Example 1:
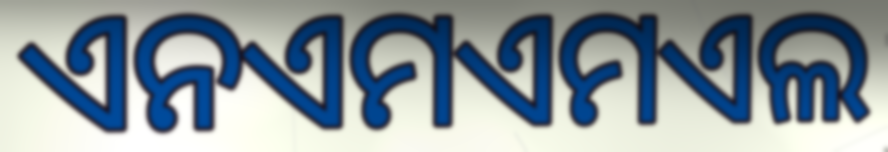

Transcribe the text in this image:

ଏନଏମଏମଏଲ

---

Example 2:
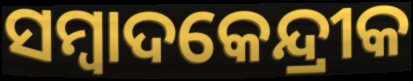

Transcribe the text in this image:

ସମ୍ୱାଦକେନ୍ଦ୍ରୀକ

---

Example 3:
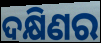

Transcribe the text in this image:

ଦକ୍ଷିଣର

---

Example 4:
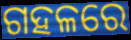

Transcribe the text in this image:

ଗହଳରେ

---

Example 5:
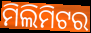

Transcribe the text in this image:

ମିଲିମିଟର